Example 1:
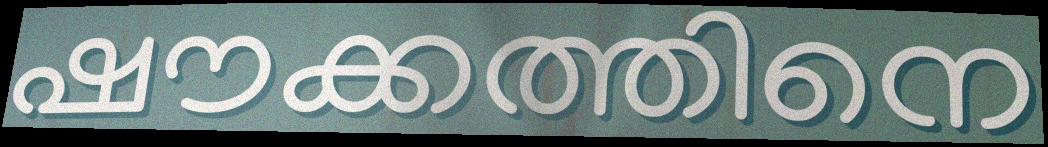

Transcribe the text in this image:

ഷൗക്കത്തിനെ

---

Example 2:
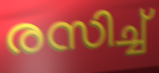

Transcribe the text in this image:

രസിച്ച്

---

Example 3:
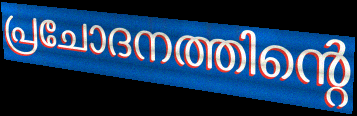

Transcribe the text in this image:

പ്രചോദനത്തിന്റെ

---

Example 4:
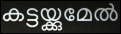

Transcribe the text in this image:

കട്ടയ്ക്കുമേൽ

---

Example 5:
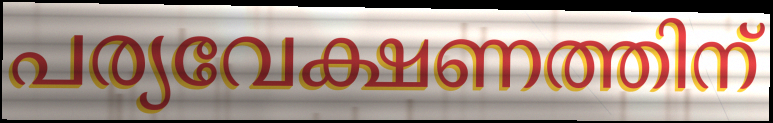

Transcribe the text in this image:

പര്യവേക്ഷണത്തിന്